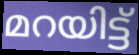
മറയിട്ട്